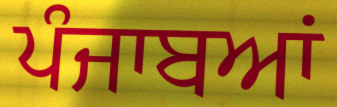
ਪੰਜਾਬਆਂ